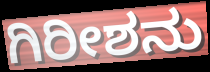
ಗಿರೀಶನು